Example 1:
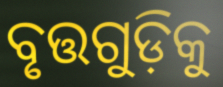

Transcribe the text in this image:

ବୃତ୍ତଗୁଡ଼ିକୁ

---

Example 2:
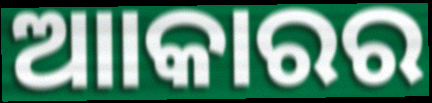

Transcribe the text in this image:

ଆାକାରର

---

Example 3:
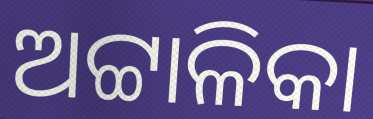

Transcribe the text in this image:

ଅଟ୍ଟାଳିକା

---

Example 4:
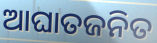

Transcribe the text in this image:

ଆଘାତଜନିତ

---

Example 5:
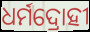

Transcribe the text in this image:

ଧର୍ମଦ୍ରୋହୀ